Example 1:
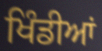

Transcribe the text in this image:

ਖਿੰਡੀਆਂ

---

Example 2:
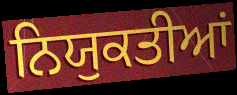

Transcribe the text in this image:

ਨਿਯੁਕਤੀਆਂ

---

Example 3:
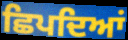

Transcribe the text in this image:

ਛਿਪਦਿਆਂ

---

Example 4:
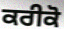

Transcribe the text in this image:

ਕਰੀਕੋ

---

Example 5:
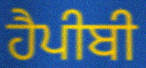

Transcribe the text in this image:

ਹੈਪੀਬੀ